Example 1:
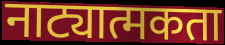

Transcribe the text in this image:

नाट्यात्मकता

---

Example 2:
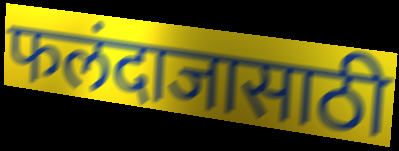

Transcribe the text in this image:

फलंदाजासाठी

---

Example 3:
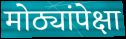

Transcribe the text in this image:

मोठ्यांपेक्षा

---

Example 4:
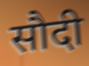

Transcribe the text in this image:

सौदी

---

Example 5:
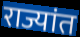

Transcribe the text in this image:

राज्यांत